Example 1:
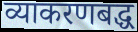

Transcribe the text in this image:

व्याकरणबद्ध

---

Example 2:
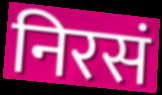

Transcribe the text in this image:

निरसं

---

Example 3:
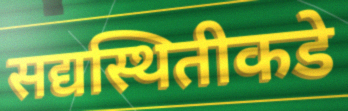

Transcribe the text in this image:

सद्यस्थितीकडे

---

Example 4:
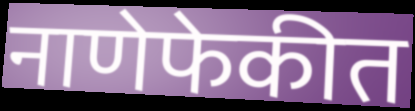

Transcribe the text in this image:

नाणेफेकीत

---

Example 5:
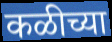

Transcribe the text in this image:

कळीच्या